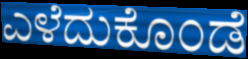
ಎಳೆದುಕೊಂಡೆ